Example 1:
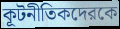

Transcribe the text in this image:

কূটনীতিকদেরকে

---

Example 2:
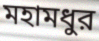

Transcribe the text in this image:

মহামধুর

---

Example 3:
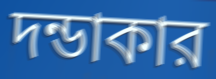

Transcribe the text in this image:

দন্ডাকার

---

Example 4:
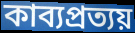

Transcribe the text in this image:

কাব্যপ্রত্যয়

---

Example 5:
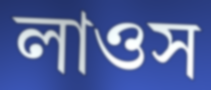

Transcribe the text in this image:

লাওস